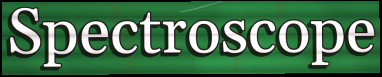
Spectroscope